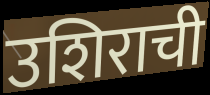
उशिराची